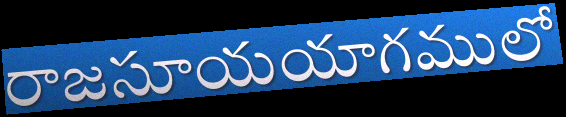
రాజసూయయాగములో